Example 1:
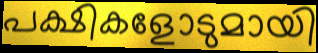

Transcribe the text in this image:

പക്ഷികളോടുമായി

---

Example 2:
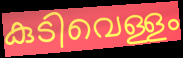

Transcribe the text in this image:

കുടിവെള്ളം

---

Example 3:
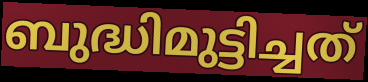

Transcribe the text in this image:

ബുദ്ധിമുട്ടിച്ചത്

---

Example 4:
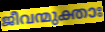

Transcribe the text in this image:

ജീവന്മുക്താഃ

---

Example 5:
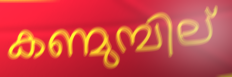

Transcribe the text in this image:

കണ്മുമ്പില്